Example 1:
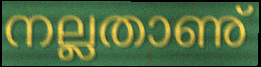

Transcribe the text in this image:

നല്ലതാണു്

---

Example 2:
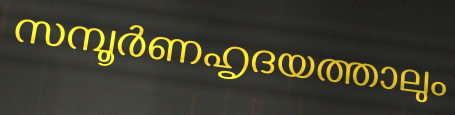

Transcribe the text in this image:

സമ്പൂർണഹൃദയത്താലും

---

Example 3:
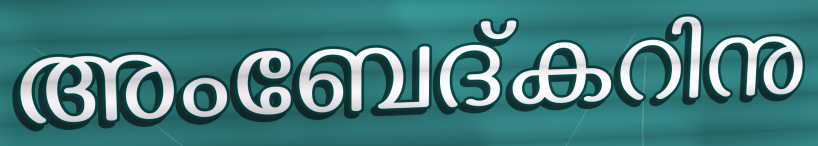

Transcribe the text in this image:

അംബേദ്കറിനു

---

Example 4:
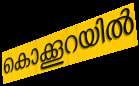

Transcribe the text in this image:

കൊക്കൂറയിൽ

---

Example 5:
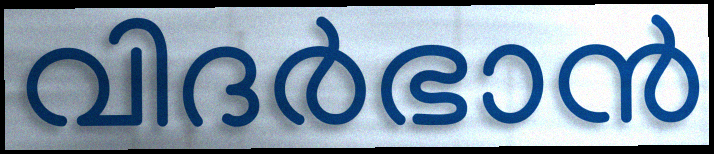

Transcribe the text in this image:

വിദർഭാൻ